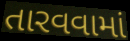
તારવવામાં